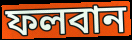
ফলবান